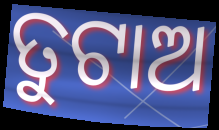
ତୁଟାଅ